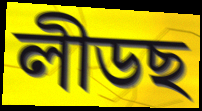
লীডছ